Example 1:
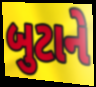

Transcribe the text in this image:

બુટાને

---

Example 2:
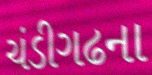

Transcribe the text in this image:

ચંડીગઢના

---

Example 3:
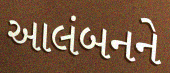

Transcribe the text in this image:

આલંબનને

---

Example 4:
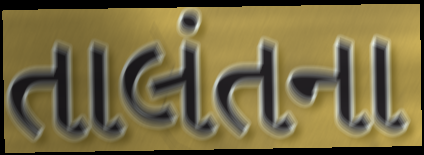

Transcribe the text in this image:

તાલંતના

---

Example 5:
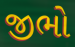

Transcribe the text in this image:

જીભો